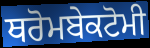
ਥਰੋਮਬੇਕਟੋਮੀ